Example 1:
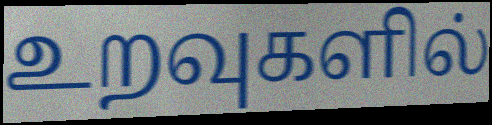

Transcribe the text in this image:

உறவுகளில்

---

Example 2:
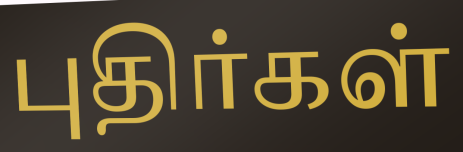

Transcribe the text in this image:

புதிர்கள்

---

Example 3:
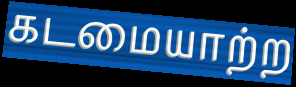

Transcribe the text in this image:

கடமையாற்ற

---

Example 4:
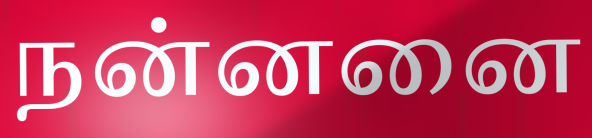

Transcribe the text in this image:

நன்னனை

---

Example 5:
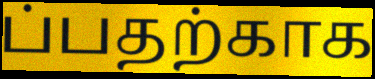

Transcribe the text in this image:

ப்பதற்காக